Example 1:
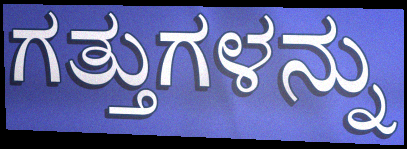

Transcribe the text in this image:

ಗತ್ತುಗಳನ್ನು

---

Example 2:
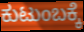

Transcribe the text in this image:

ಕುಟುಂಬಕ್ಕೆ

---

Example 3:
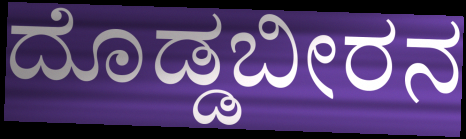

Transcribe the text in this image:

ದೊಡ್ಡಬೀರನ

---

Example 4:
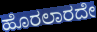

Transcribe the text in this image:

ಹೊರಲಾರದೇ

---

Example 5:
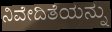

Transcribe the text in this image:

ನಿವೇದಿತೆಯನ್ನು